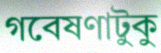
গবেষণাটুকু